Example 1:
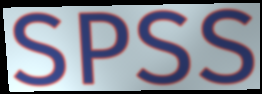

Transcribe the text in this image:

SPSS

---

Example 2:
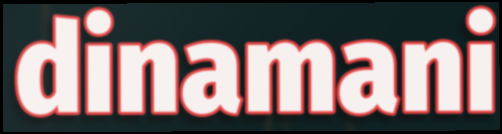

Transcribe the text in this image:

dinamani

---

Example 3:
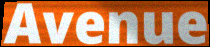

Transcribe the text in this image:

Avenue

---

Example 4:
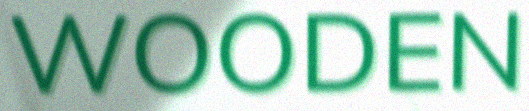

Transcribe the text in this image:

WOODEN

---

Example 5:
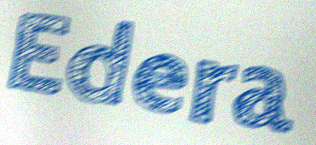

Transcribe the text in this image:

Edera